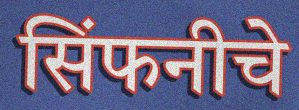
सिंफनीचे